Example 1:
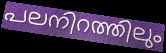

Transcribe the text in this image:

പലനിറത്തിലും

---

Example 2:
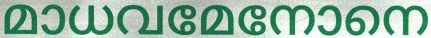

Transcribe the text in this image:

മാധവമേനോനെ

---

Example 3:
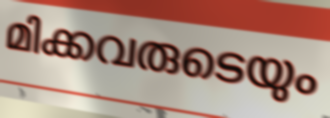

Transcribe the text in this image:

മിക്കവരുടെയും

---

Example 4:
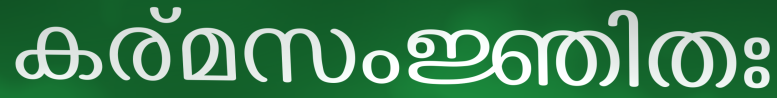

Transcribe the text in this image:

കര്മസംജ്ഞിതഃ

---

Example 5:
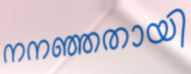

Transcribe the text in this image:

നനഞ്ഞതായി